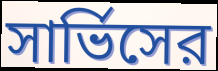
সার্ভিসের